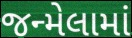
જન્મેલામાં